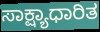
ಸಾಕ್ಷ್ಯಾಧಾರಿತ